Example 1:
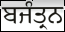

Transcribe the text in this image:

ਬਜੰਤ੍ਰਨ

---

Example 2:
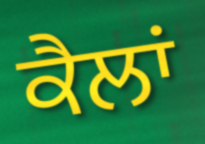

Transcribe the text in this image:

ਕੈਲਾਂ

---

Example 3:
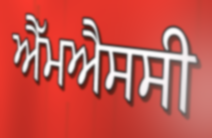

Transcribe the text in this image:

ਐੱਮਐਸਸੀ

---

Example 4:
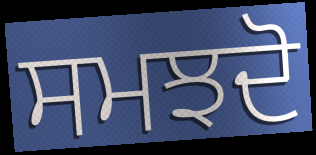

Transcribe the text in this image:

ਸਮਝਦੋ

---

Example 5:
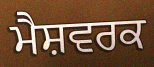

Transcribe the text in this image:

ਮੈਸ਼ਵਰਕ